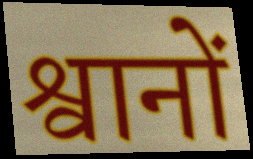
श्वानों